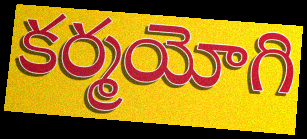
కర్మయోగి